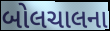
બોલચાલના